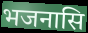
भजनासि